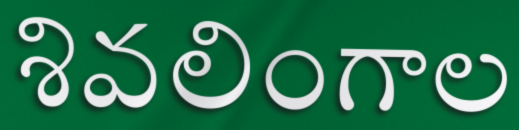
శివలింగాల